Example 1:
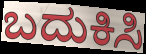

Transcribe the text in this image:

ಬದುಕಿಸಿ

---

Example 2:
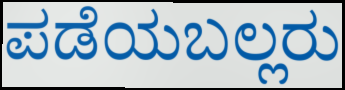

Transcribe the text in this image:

ಪಡೆಯಬಲ್ಲರು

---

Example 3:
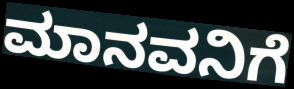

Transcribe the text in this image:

ಮಾನವನಿಗೆ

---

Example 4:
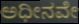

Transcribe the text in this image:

ಅಧೀನವೇ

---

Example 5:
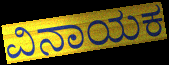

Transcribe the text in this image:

ವಿನಾಯಕ